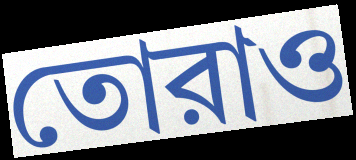
তোরাও